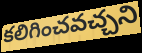
కలిగించవచ్చని